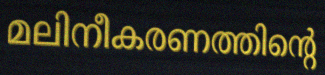
മലിനീകരണത്തിന്റെ